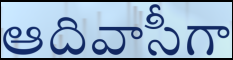
ఆదివాసీగా